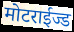
मोटराईज्ड